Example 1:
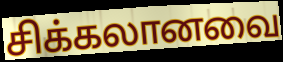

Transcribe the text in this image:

சிக்கலானவை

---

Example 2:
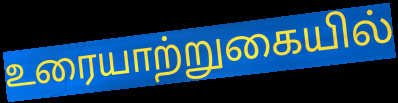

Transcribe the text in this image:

உரையாற்றுகையில்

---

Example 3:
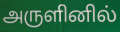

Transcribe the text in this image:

அருளினில்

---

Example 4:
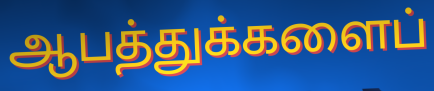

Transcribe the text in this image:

ஆபத்துக்களைப்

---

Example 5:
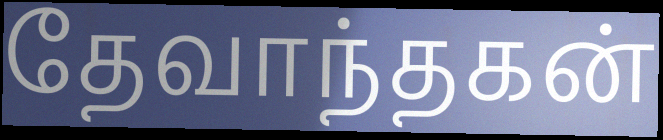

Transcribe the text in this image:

தேவாந்தகன்